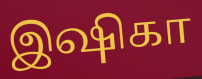
இஷிகா